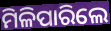
ମିଳିପାରିଲେ